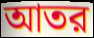
আতর